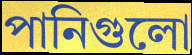
পানিগুলো